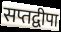
सप्तद्वीपा